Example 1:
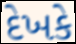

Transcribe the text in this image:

દેખકે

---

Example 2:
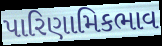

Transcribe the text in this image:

પારિણામિકભાવ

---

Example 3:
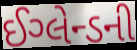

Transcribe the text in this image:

ઈગ્લેન્ડની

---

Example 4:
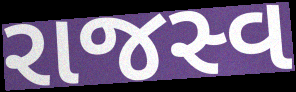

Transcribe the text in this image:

રાજસ્વ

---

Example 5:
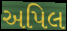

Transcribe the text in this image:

અપિલ